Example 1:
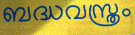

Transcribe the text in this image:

ബദ്ധവസ്ത്രം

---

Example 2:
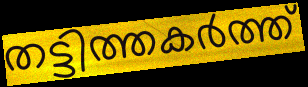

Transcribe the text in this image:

തട്ടിത്തകർത്ത്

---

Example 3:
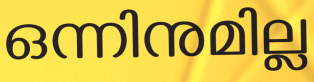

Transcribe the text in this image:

ഒന്നിനുമില്ല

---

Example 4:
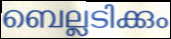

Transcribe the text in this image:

ബെല്ലടിക്കും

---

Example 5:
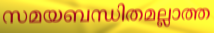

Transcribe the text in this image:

സമയബന്ധിതമല്ലാത്ത